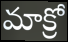
మాక్రో